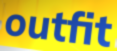
outfit